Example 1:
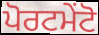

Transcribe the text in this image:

ਪੋਰਟਮੇਂਟੋ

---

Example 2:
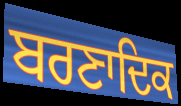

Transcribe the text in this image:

ਬਰਣਾਦਿਕ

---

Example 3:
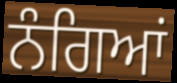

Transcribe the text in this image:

ਨੰਗਿਆਂ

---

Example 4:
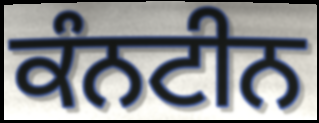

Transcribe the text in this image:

ਕੰਨਟੀਨ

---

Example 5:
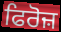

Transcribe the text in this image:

ਫਿਰੋਜ਼